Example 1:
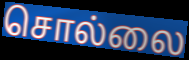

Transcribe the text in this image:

சொல்லை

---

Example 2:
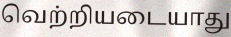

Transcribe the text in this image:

வெற்றியடையாது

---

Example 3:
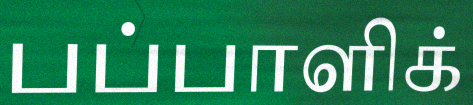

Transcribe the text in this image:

பப்பாளிக்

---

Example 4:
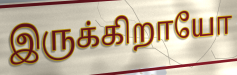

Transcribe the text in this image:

இருக்கிறாயோ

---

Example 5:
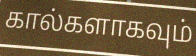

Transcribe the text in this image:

கால்களாகவும்